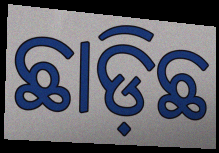
ଛାଡ଼ିଛ